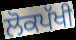
ਲੋਕਪੱਖੀ